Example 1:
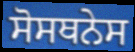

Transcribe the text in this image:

ਸੋਸਥਨੇਸ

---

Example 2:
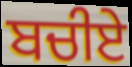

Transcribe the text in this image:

ਬਚੀਏ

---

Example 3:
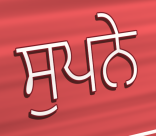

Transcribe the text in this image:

ਸੁਪਨੇ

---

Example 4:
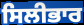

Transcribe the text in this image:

ਸਿਲੀਭਾਰ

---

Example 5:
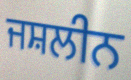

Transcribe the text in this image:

ਜਸ਼ਲੀਨ